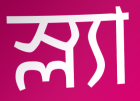
স্ল্যা